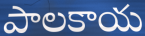
పాలకాయ